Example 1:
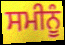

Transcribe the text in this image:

ਸਮੀਨੂੰ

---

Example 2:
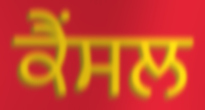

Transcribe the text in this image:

ਕੈਂਸਲ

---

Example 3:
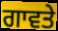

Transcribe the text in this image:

ਗਾਵਤੇ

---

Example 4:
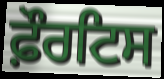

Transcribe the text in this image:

ਫ਼ੌਰਟਿਸ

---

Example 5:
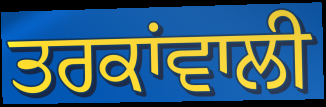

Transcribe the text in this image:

ਤਰਕਾਂਵਾਲੀ